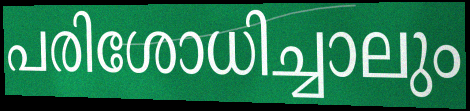
പരിശോധിച്ചാലും